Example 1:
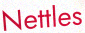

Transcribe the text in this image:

Nettles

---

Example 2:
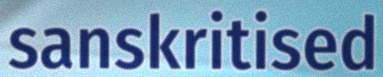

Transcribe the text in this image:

sanskritised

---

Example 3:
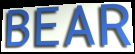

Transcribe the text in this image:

BEAR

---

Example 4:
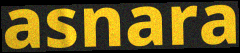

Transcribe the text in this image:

asnara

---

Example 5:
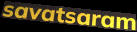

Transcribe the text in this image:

savatsaram